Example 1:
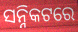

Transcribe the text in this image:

ସନ୍ନିକଟରେ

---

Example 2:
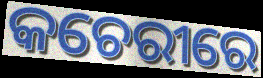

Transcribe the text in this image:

କଚେରୀରେ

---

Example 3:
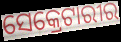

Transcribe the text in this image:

ସେକ୍ରେଟାରୀର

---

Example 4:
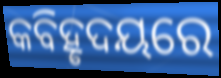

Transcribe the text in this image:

କବିହୃଦୟରେ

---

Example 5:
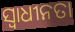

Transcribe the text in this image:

ସ୍ବାଧୀନତା